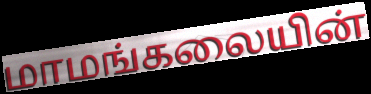
மாமங்கலையின்